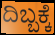
ದಿಬ್ಬಕ್ಕೆ